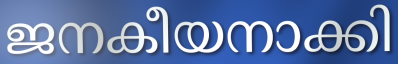
ജനകീയനാക്കി